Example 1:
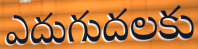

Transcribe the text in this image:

ఎదుగుదలకు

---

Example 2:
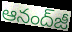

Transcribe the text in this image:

ఆనంద్‌జీ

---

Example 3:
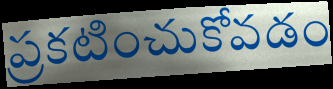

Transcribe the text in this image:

ప్రకటించుకోవడం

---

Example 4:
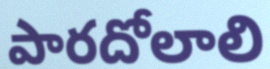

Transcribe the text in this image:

పారదోలాలి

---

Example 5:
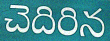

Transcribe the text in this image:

చెదిరిన